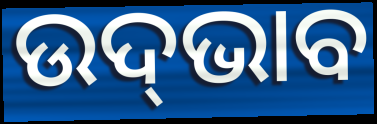
ଉଦ୍‍ଭାବ